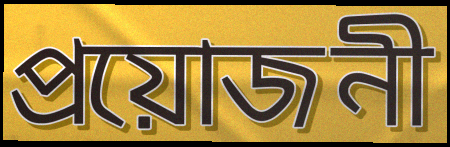
প্রয়োজনী